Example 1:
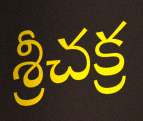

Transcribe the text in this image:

శ్రీచక్ర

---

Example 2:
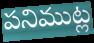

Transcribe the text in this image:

పనిముట్ల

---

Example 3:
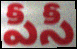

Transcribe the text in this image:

పీసీ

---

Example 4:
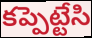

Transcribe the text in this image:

కప్పెట్టేసి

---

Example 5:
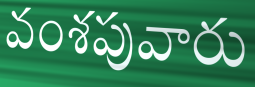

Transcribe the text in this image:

వంశపువారు